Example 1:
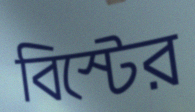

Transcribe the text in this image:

বিস্টের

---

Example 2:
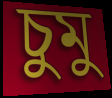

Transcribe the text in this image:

চুমু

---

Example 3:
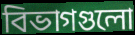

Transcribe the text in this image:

বিভাগগুলো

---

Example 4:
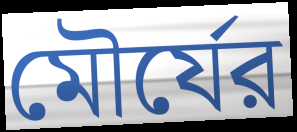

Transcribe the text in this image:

মৌর্যের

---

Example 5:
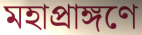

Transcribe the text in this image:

মহাপ্রাঙ্গণে